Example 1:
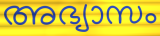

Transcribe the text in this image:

അഭ്യാസം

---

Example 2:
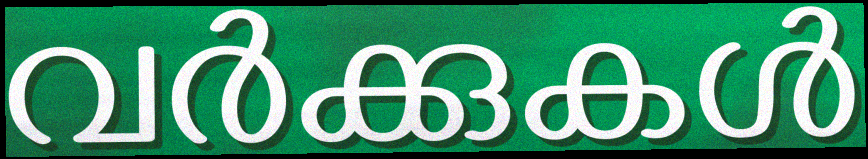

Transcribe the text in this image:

വർക്കുകൾ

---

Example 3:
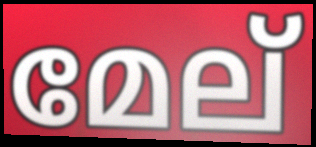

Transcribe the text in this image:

മേല്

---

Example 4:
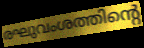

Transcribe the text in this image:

രഘുവംശത്തിന്റെ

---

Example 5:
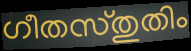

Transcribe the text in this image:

ഗീതസ്തുതിം